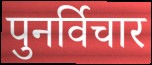
पुनर्विचार